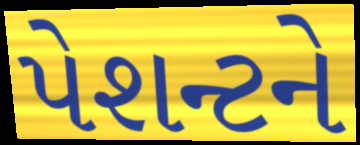
પેશન્ટને